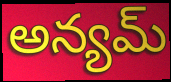
అన్యమ్